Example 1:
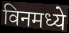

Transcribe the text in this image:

विनमध्ये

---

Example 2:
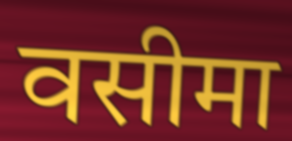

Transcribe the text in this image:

वसीमा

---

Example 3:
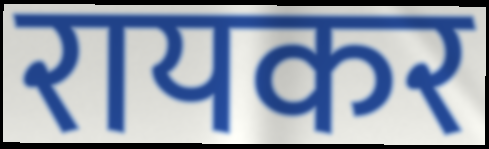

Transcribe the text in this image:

रायकर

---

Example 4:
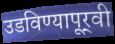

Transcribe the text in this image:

उडविण्यापूर्वी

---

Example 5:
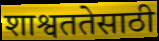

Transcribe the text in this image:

शाश्वततेसाठी